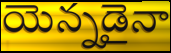
యెన్నడైనా